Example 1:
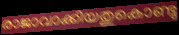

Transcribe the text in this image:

രാജാവാക്കിയതുകൊണ്ടു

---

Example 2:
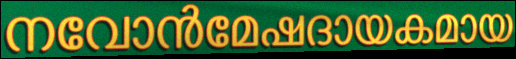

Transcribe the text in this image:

നവോൻമേഷദായകമായ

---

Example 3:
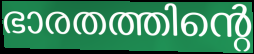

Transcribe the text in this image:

ഭാരതത്തിന്റെ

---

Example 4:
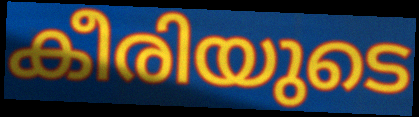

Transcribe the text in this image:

കീരിയുടെ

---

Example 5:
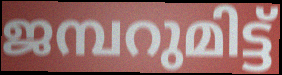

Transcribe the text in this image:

ജമ്പറുമിട്ട്